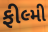
ફીલ્મી